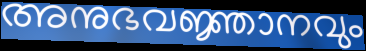
അനുഭവജ്ഞാനവും